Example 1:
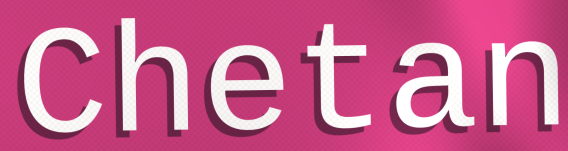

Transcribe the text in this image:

Chetan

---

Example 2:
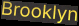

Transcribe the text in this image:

Brooklyn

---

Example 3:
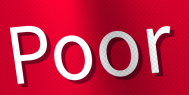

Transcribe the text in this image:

Poor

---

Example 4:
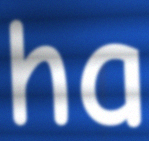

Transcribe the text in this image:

ha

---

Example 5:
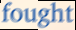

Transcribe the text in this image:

fought